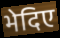
भेदिए